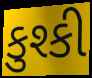
કુશ્કી